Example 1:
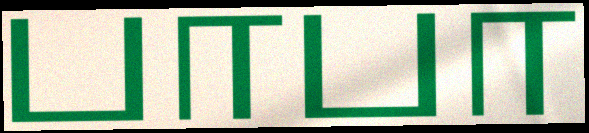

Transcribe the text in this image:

பாபா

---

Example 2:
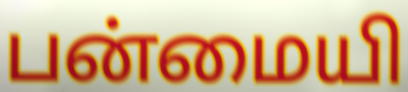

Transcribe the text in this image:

பன்மையி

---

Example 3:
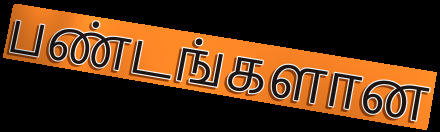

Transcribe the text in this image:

பண்டங்களான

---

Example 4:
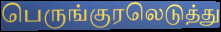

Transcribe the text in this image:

பெருங்குரலெடுத்து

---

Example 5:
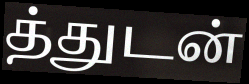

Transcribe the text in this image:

த்துடன்